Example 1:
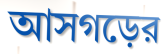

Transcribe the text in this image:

আসগড়ের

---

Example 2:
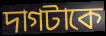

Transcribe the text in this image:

দাগটাকে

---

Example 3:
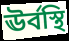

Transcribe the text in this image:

ঊর্বস্থি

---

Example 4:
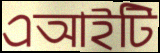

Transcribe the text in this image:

এআইটি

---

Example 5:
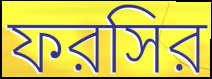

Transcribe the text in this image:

ফরসির